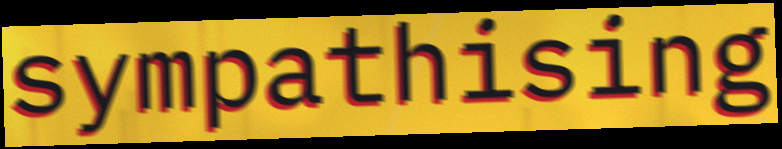
sympathising